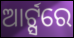
ଆର୍ଟ୍ସରେ